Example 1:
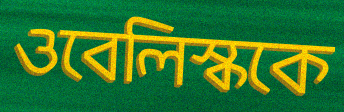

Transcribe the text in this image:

ওবেলিস্ককে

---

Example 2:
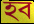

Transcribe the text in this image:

হব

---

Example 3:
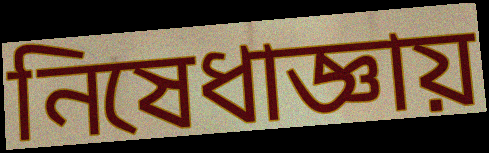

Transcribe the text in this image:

নিষেধাজ্ঞায়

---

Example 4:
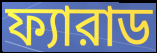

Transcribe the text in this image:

ফ্যারাড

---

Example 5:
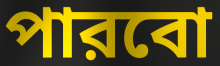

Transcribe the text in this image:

পারবো